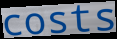
costs